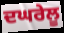
ਦਘਰੇਲੂ